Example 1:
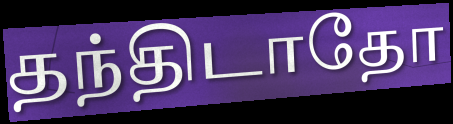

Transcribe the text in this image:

தந்திடாதோ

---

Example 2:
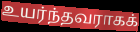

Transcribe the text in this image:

உயர்ந்தவராகக்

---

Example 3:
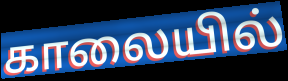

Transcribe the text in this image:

காலையில்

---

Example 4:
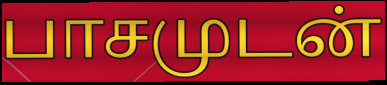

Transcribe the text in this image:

பாசமுடன்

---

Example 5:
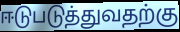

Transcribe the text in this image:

ஈடுபடுத்துவதற்கு